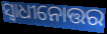
ସ୍ୱାଧୀନୋତ୍ତର